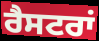
ਰੈਸਟਰਾਂ